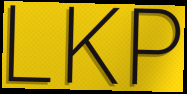
LKP